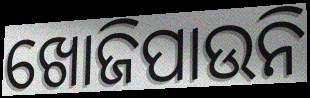
ଖୋଜିପାଉନି